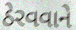
ઠેરવવાને